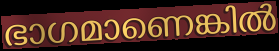
ഭാഗമാണെങ്കിൽ